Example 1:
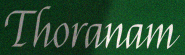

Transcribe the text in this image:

Thoranam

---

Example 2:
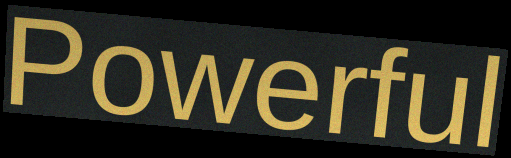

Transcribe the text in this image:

Powerful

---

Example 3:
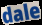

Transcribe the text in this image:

dale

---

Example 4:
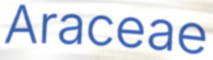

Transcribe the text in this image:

Araceae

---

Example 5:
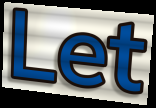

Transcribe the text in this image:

Let